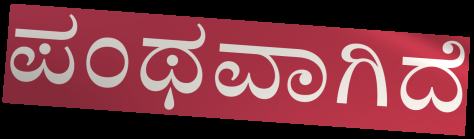
ಪಂಥವಾಗಿದೆ